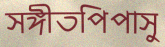
সঙ্গীতপিপাসু